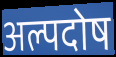
अल्पदोष